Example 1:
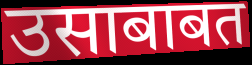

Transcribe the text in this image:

उसाबाबत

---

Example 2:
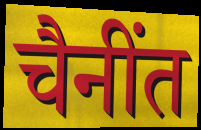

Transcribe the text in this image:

चैनींत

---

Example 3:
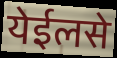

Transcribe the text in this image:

येईलसे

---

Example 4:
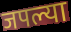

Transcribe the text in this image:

जपल्या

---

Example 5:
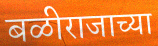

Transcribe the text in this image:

बळीराजाच्या